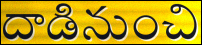
దాడినుంచి